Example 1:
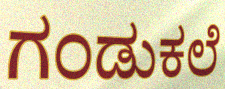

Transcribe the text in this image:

ಗಂಡುಕಲೆ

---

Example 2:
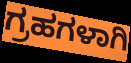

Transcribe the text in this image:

ಗ್ರಹಗಳಾಗಿ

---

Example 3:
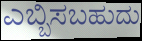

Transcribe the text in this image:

ಎಬ್ಬಿಸಬಹುದು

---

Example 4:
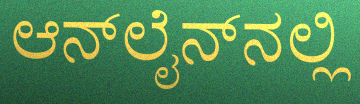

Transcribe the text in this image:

ಆನ್‌ಲೈನ್‌ನಲ್ಲಿ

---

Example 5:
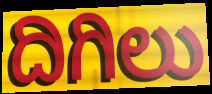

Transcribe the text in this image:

ದಿಗಿಲು